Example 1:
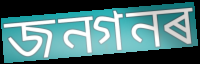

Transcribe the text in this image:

জনগনৰ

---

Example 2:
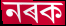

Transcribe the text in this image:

নৰক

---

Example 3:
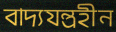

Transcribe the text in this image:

বাদ্যযন্ত্ৰহীন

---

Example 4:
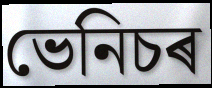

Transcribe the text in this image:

ভেনিচৰ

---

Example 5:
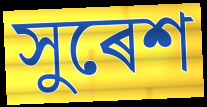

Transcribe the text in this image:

সুৰেশ